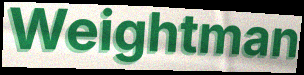
Weightman